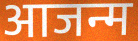
आजन्म